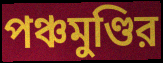
পঞ্চমুণ্ডির